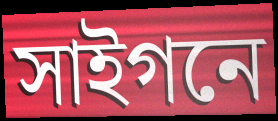
সাইগনে